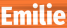
Emilie